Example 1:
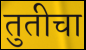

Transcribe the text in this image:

तुतीचा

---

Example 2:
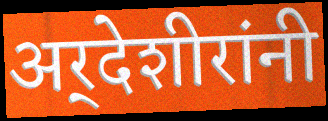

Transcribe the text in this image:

अर्देशीरांनी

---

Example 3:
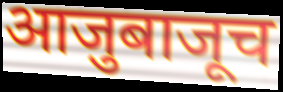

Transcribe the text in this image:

आजुबाजूच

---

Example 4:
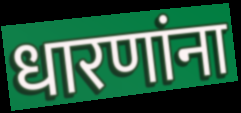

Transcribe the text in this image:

धारणांना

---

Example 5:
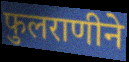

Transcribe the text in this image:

फुलराणीने